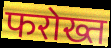
फरोख्त